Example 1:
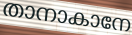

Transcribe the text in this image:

താനാകാനേ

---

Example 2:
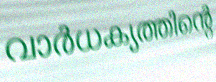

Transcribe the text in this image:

വാർധക്യത്തിന്റെ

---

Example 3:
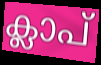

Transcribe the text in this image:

ക്ലാപ്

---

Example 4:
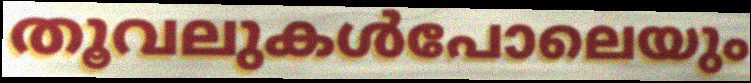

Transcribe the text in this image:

തൂവലുകൾപോലെയും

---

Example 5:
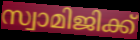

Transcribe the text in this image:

സ്വാമിജിക്ക്